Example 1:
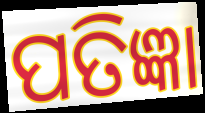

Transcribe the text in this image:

ପତିଜ୍ଞା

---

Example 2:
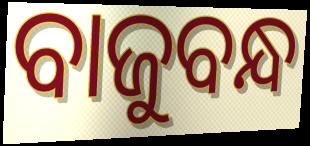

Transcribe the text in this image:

ବାଜୁବନ୍ଧ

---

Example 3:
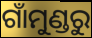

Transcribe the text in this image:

ଗାଁମୁଣ୍ଡରୁ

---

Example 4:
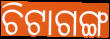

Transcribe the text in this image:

ଚିଟାଗଙ୍ଗ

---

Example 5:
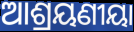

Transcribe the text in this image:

ଆଶ୍ରୟଣୀୟା